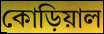
কোড়িয়াল